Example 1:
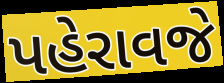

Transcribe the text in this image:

પહેરાવજે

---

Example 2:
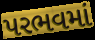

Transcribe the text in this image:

પરભવમાં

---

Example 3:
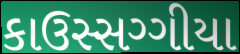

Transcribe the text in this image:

કાઉસ્સગ્ગીયા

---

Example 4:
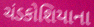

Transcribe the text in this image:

ચંડકોશિયાના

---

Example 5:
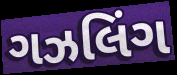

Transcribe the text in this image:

ગઝલિંગ